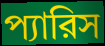
প্যারিস